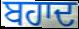
ਬਹਾਦ